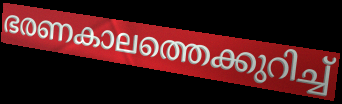
ഭരണകാലത്തെക്കുറിച്ച്